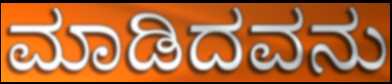
ಮಾಡಿದವನು